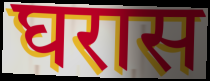
घरास